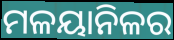
ମଳୟାନିଳର